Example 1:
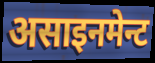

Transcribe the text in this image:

असाइनमेन्ट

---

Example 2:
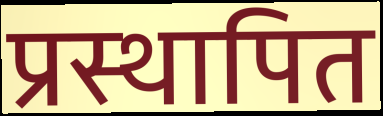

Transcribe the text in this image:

प्रस्थापित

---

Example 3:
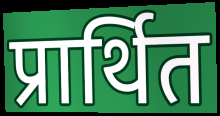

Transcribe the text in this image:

प्रार्थित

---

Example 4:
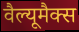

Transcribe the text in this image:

वैल्यूमैक्स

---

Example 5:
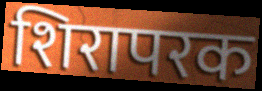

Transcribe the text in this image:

शिरापरक